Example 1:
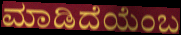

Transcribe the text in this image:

ಮಾಡಿದೆಯೆಂಬ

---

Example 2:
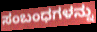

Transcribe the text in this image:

ಸಂಬಂಧಗಳನ್ನು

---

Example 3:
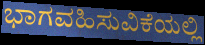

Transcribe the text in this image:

ಭಾಗವಹಿಸುವಿಕೆಯಲ್ಲಿ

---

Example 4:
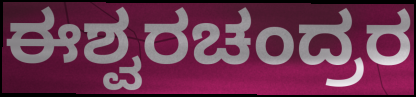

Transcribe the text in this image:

ಈಶ್ವರಚಂದ್ರರ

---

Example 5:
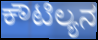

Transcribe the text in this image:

ಕೌಟಿಲ್ಯನ